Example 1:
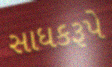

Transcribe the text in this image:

સાધકરૂપે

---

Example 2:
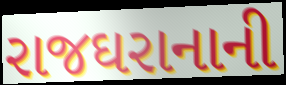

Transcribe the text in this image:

રાજઘરાનાની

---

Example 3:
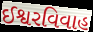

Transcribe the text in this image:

ઈશ્વરવિવાહ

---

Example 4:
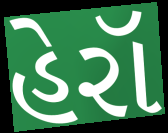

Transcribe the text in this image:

હેરૉ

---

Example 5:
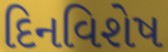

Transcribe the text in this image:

દિનવિશેષ